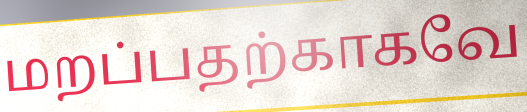
மறப்பதற்காகவே